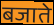
बजाते